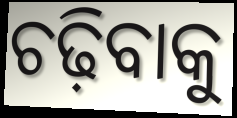
ଚଢ଼ିବାକୁ